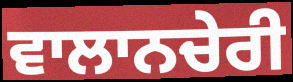
ਵਾਲਾਨਚੇਰੀ